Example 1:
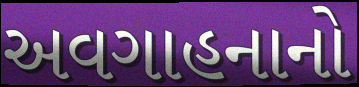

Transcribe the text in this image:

અવગાહનાનો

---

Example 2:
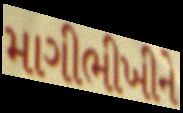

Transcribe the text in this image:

માગીભીખીને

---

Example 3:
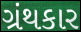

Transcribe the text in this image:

ગ્રંથકાર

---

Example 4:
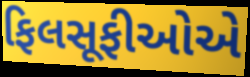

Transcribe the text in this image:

ફિલસૂફીઓએ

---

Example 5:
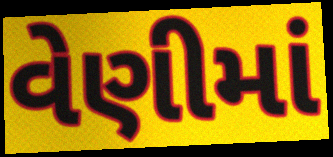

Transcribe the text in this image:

વેણીમાં